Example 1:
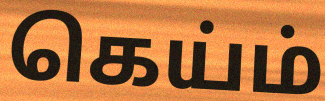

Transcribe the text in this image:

கெய்ம்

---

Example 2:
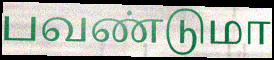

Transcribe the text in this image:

பவண்டுமா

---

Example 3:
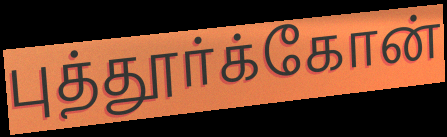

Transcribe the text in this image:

புத்தூர்க்கோன்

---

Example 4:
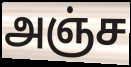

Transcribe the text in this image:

அஞ்ச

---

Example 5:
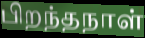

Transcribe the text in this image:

பிறந்தநாள்